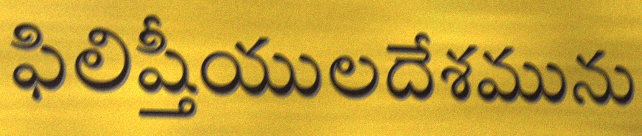
ఫిలిష్తీయులదేశమును